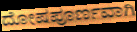
ದೋಷಪೂರ್ಣವಾಗಿ